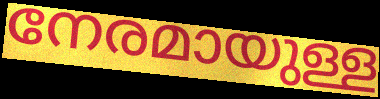
നേരമായുള്ള